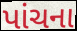
પાંચના